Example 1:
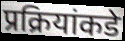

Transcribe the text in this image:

प्रक्रियांकडे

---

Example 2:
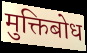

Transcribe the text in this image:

मुक्तिबोध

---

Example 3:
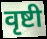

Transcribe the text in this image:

वृष्टी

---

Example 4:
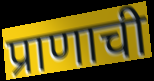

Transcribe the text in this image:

प्राणाची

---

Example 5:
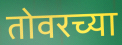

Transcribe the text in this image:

तोवरच्या